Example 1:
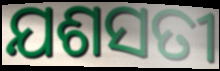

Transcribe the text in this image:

ଯଶସତୀ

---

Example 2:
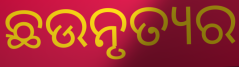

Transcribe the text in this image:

ଛଉନୃତ୍ୟର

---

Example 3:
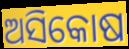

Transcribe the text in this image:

ଅସିକୋଷ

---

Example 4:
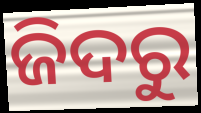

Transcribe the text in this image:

ଜିଦରୁ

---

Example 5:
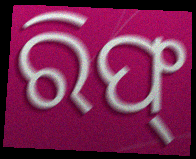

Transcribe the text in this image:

ରିଫ୍